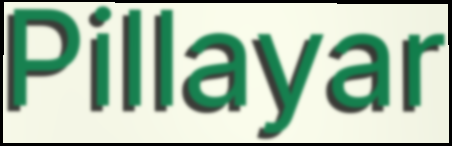
Pillayar